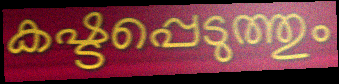
കഷ്ടപ്പെടുത്തും